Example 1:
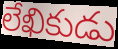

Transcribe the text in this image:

లేఖికుడు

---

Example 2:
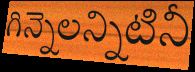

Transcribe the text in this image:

గిన్నెలన్నిటినీ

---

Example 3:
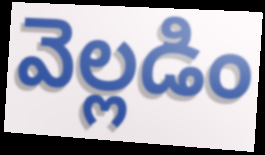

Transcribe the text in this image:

వెల్లడిం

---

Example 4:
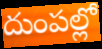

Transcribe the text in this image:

దుంపల్లో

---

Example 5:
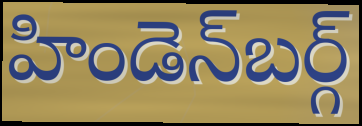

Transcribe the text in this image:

హిండెన్‌బర్గ్